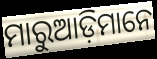
ମାରୁଆଡ଼ିମାନେ